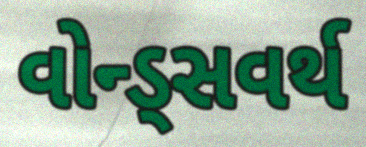
વોન્ડ્સવર્થ